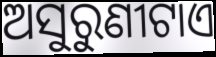
ଅସୁରୁଣୀଟାଏ